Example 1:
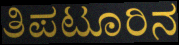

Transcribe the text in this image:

ತಿಪಟೂರಿನ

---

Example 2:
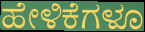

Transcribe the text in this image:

ಹೇಳಿಕೆಗಳೂ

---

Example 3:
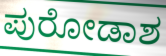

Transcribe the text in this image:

ಪುರೋಡಾಶ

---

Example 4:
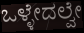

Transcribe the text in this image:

ಒಳ್ಳೇದಲ್ವೇ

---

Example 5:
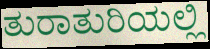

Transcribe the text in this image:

ತುರಾತುರಿಯಲ್ಲಿ